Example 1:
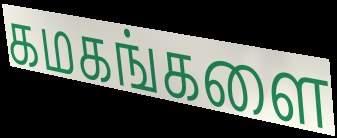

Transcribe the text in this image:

கமகங்களை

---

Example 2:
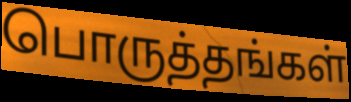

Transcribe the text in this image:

பொருத்தங்கள்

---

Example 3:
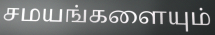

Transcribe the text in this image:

சமயங்களையும்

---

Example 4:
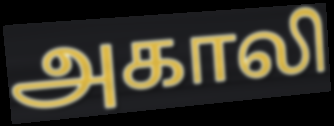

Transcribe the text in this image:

அகாலி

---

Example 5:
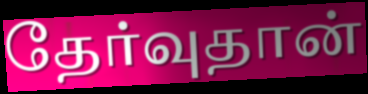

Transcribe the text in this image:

தேர்வுதான்